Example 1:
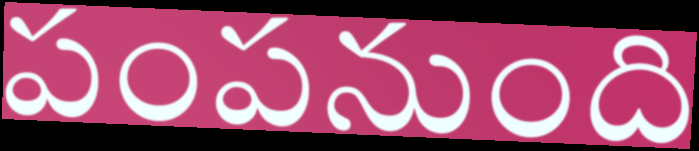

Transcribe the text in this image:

పంపనుంది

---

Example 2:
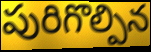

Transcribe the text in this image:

పురిగొల్పిన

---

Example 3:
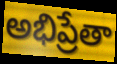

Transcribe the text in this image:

అభిప్రేతా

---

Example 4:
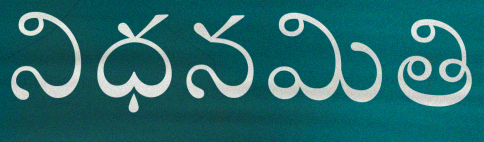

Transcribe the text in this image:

నిధనమితి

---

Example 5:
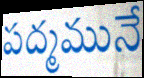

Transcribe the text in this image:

పద్మమునే